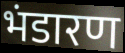
भंडारण